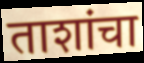
ताशांचा